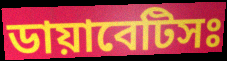
ডায়াবেটিসঃ